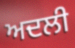
ਅਦਲੀ